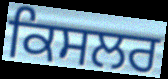
ਕਿਸਲਰ